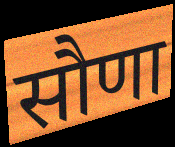
सौणा